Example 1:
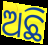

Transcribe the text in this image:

ଅଛି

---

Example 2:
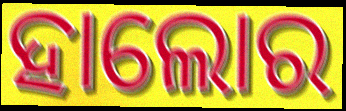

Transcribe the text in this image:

ହାଲୋର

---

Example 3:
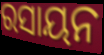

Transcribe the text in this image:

ରସାୟନ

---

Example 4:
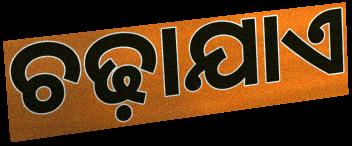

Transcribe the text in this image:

ଚଢ଼ାଯାଏ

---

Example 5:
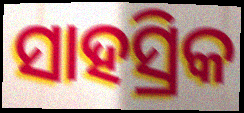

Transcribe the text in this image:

ସାହସ୍ରିକ